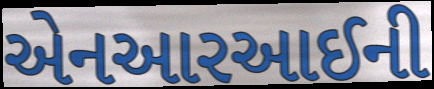
એનઆરઆઈની